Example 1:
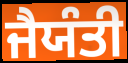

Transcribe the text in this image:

ਜੈਯੰਤੀ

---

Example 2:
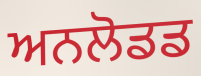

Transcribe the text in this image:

ਅਨਲੋਡਡ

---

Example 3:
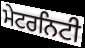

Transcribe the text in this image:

ਮੇਟਰਨਿਟੀ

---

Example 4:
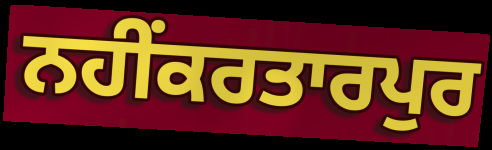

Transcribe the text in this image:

ਨਹੀਂਕਰਤਾਰਪੁਰ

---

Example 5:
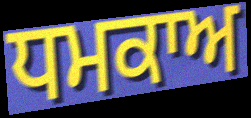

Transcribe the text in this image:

ਧਮਕਾਅ